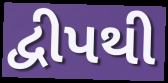
દ્વીપથી